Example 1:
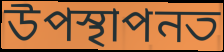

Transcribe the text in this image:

উপস্থাপনত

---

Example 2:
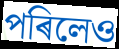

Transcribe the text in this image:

পৰিলেও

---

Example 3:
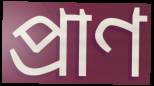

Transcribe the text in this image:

প্ৰাণ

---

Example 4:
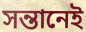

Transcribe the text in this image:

সন্তানেই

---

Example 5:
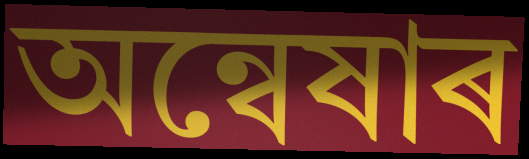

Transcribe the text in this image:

অন্বেষাৰ